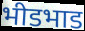
भीडभाड